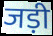
जड़ी